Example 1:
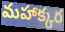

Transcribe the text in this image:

మహాక్కర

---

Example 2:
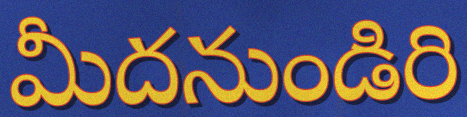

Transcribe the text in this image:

మీదనుండిరి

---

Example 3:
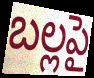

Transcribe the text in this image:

బల్లపై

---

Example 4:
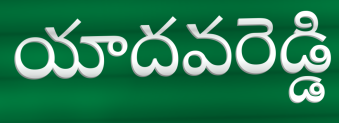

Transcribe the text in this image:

యాదవరెడ్డి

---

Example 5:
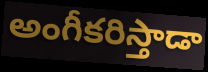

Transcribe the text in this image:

అంగీకరిస్తాడా